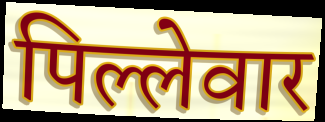
पिल्लेवार